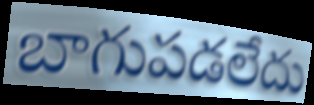
బాగుపడలేదు